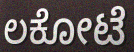
ಲಕೋಟೆ